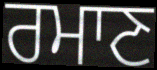
ਰਮਾਣ